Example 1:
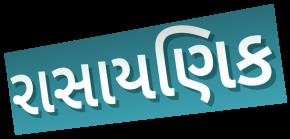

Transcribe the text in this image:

રાસાયણિક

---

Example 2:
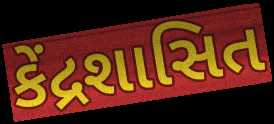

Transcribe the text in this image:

કેંદ્રશાસિત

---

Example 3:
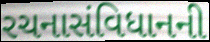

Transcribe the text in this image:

રચનાસંવિધાનની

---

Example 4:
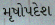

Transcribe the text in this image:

મૃષોપદેશ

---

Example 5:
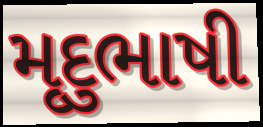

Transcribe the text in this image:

મૃદુભાષી